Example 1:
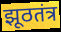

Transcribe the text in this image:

झूठतंत्र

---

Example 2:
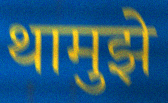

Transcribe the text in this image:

थामुझे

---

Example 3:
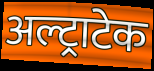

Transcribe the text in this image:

अल्‍ट्राटेक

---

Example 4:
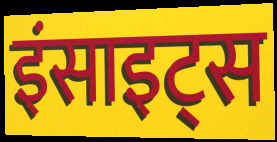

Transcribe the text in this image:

इंसाइट्स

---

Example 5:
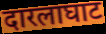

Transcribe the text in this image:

दारलाघाट